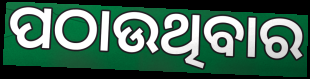
ପଠାଉଥିବାର